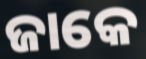
ଜାକେ